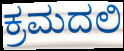
ಕ್ರಮದಲಿ